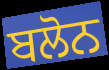
ਬਲੋਨ